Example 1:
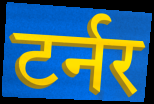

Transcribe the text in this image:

टर्नर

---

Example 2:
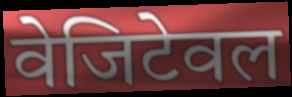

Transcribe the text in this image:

वेजिटेवल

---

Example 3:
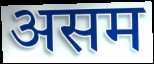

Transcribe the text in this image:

असम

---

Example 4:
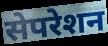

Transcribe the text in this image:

सेपरेशन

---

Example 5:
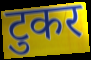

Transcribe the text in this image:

टुकर